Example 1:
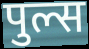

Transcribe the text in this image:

पुल्स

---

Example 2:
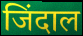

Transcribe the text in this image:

जिंदाल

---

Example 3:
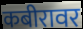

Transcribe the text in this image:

कबीरावर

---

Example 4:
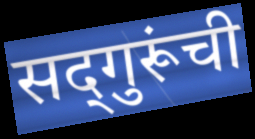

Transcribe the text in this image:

सद्‌गुरूंची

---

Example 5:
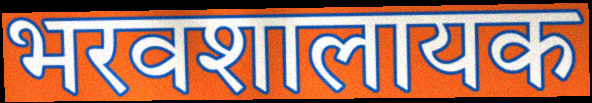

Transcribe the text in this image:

भरवशालायक